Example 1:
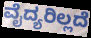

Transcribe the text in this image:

ವೈದ್ಯರಿಲ್ಲದೆ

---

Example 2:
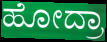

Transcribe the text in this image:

ಹೋದ್ರಾ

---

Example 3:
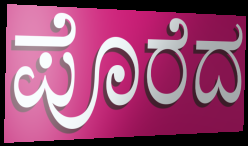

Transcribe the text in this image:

ಪೊರೆದ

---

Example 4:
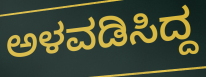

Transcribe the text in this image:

ಅಳವಡಿಸಿದ್ದ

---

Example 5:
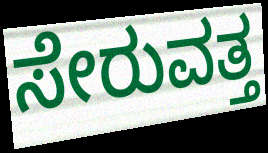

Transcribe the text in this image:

ಸೇರುವತ್ತ